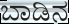
ಬಾಡಿನ